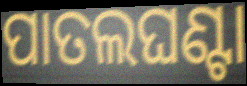
ପାତଲଘଣ୍ଟା